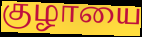
குழாயை